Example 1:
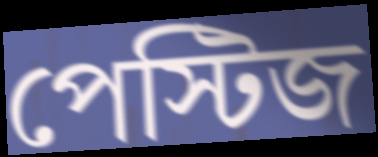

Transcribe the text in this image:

পেস্টিজ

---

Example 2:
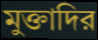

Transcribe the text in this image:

মুক্তাদির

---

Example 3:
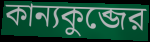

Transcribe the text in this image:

কান্যকুব্জের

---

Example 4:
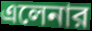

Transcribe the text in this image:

এলেনার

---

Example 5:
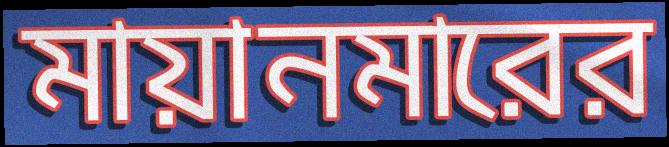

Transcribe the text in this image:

মায়ানমারের